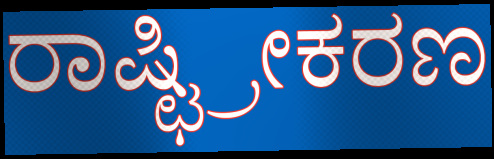
ರಾಷ್ಟ್ರೀಕರಣ